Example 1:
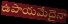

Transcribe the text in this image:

ఉపాయమేదైనా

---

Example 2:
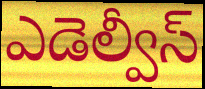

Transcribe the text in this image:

ఎడెల్వీస్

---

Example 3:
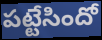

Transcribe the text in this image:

పట్టేసిందో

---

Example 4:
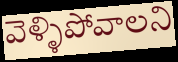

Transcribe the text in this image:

వెళ్ళిపోవాలని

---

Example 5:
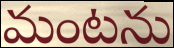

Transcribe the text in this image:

మంటను